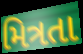
મિત્રતા